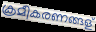
ക്രമീകരണങ്ങള്